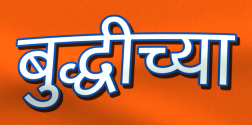
बुद्धीच्या